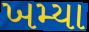
ખમ્યા